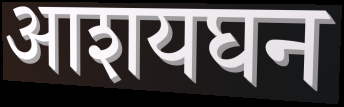
आशयघन